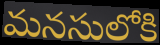
మనసులోకి